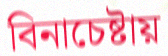
বিনাচেষ্টায়